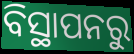
ବିସ୍ଥାପନରୁ